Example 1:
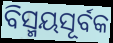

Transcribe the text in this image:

ବିସ୍ମୟସୂର୍ବକ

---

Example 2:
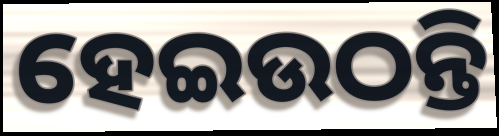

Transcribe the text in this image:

ହେଇଉଠନ୍ତି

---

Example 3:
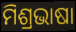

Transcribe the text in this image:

ମିଶ୍ରଭାଷା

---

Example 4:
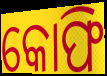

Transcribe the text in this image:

କୋଫି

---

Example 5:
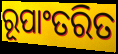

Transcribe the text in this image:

ରୂପାଂତରିତ